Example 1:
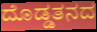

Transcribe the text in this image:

ದೊಡ್ಡತನದ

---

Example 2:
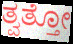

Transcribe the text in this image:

ತ್ವತ್ತೋ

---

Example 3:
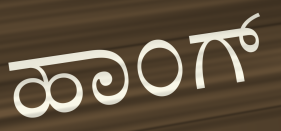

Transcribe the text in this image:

ಹಾಂಗ್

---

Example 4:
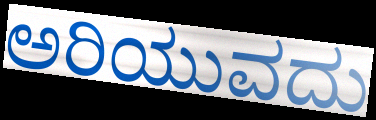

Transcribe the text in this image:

ಅರಿಯುವದು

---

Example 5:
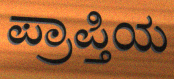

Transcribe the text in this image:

ಪ್ರಾಪ್ತಿಯ